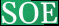
SOE